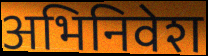
अभिनिवेश